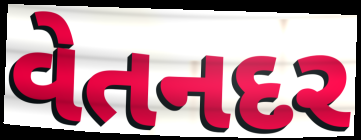
વેતનદર